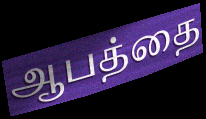
ஆபத்தை